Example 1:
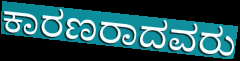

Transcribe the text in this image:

ಕಾರಣರಾದವರು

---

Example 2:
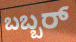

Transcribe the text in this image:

ಬಬ್ಬರ್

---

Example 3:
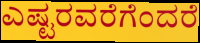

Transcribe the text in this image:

ಎಷ್ಟರವರೆಗೆಂದರೆ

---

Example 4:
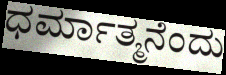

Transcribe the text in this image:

ಧರ್ಮಾತ್ಮನೆಂದು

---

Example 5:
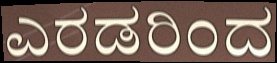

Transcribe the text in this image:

ಎರಡರಿಂದ